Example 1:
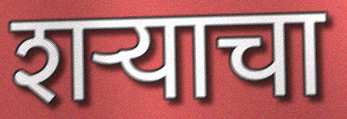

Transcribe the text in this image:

शर्‍याचा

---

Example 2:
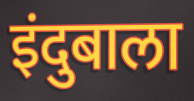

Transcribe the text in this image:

इंदुबाला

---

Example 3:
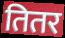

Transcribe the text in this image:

तितर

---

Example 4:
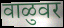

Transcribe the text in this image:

वाळुवर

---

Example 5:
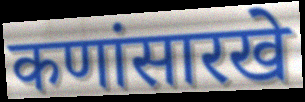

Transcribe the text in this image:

कणांसारखे